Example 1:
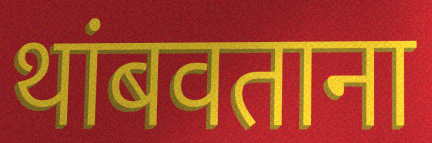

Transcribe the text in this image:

थांबवताना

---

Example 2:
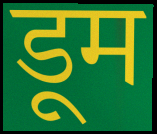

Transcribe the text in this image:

डूम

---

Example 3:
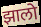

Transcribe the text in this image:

झालो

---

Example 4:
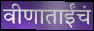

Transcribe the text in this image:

वीणाताईंचं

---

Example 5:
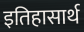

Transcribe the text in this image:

इतिहासार्थ